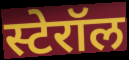
स्टेरॉल